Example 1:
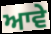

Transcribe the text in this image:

ਆਵੇ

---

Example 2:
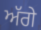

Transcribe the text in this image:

ਅੱਗੇ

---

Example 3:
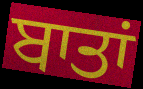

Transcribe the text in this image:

ਬਾਤਾਂ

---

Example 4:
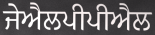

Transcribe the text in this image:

ਜੇਐਲਪੀਪੀਐਲ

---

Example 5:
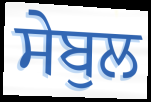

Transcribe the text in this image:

ਸੇਬੁਲ